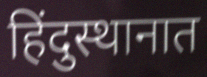
हिंदुस्थानात